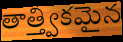
తాత్త్వికమైన